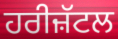
ਹਰੀਜ਼ੱਟਲ